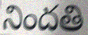
నిందతి